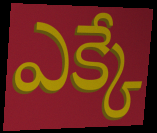
ఎక్కే